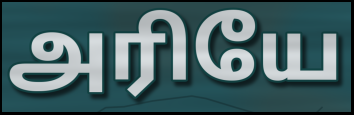
அரியே